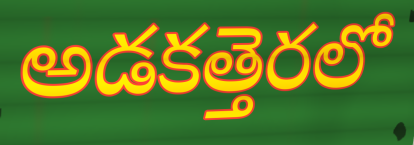
అడకత్తెరలో